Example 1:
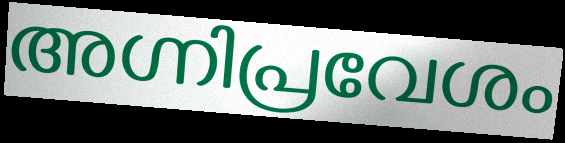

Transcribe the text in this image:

അഗ്നിപ്രവേശം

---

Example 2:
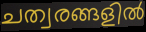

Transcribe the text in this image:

ചത്വരങ്ങളിൽ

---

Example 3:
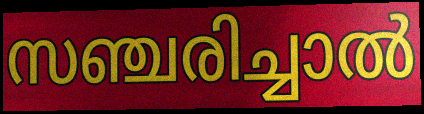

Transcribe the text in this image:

സഞ്ചരിച്ചാൽ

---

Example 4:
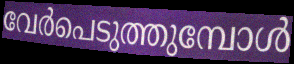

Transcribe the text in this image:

വേർപെടുത്തുമ്പോൾ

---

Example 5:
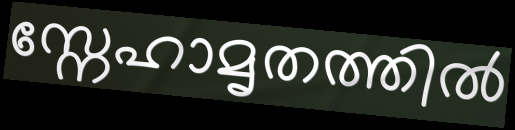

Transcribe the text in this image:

സ്നേഹാമൃതത്തിൽ